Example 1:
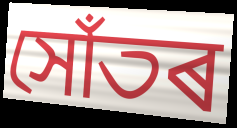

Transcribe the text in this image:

সোঁতৰ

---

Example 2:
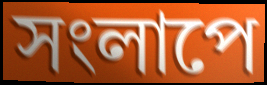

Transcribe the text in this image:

সংলাপে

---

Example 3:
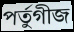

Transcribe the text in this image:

পৰ্তুগীজ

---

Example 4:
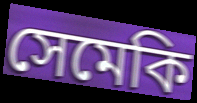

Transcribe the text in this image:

সেমেকি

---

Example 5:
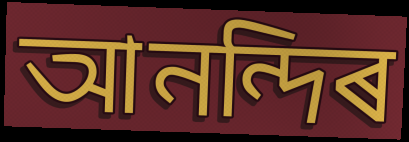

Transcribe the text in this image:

আনন্দিৰ